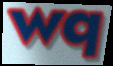
wq